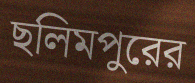
ছলিমপুরের